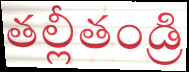
తల్లీతండ్రి